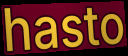
hasto